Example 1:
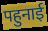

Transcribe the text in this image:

पहुनाई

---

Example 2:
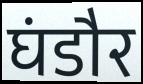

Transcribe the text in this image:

घंडौर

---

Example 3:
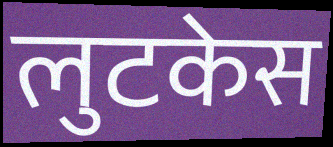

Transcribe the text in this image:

लुटकेस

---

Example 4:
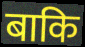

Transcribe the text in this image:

बाकि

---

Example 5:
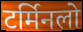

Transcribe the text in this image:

टर्मिनलो